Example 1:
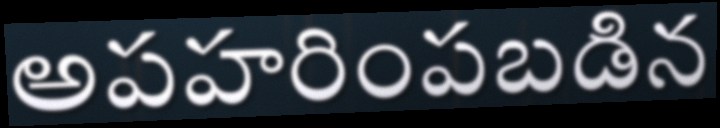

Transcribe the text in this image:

అపహరింపబడిన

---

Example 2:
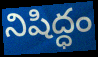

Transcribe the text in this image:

నిషిద్ధం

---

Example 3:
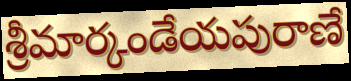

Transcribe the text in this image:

శ్రీమార్కండేయపురాణే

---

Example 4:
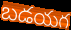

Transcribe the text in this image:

బడయగ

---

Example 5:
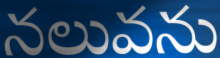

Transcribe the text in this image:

నలువను